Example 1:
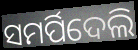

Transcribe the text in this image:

ସମର୍ପିଦେଲି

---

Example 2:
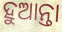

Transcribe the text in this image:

ହୁଆନ୍ତା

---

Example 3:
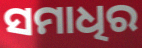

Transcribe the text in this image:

ସମାଧିର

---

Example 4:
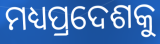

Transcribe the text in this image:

ମଧ୍ୟପ୍ରଦେଶକୁ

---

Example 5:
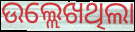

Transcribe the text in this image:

ଉଲ୍ଲେଖଥିଲା